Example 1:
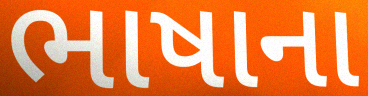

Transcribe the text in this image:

ભાષાના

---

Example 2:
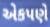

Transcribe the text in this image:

એકપણે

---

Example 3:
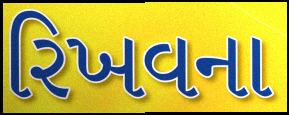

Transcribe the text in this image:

રિખવના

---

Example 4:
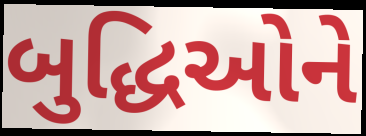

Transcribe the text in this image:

બુદ્ધિઓને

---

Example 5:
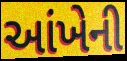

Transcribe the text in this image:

આંખેની